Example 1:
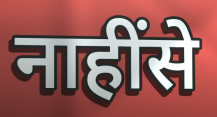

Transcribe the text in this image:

नाहींसे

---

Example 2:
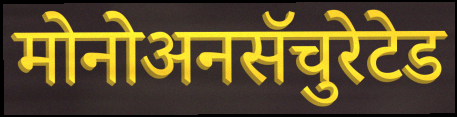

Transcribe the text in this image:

मोनोअनसॅचुरेटेड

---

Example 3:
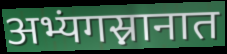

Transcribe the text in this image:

अभ्यंगस्नानात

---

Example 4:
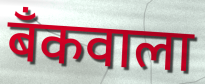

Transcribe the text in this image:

बँकवाला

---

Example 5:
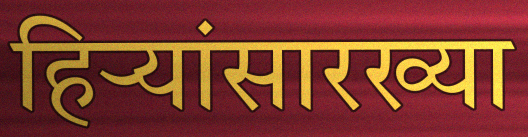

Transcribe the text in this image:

हिऱ्यांसारख्या